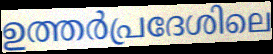
ഉത്തർപ്രദേശിലെ